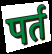
पर्त